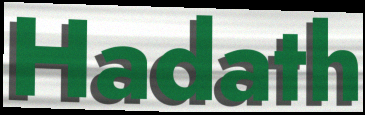
Hadath